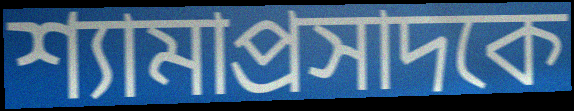
শ্যামাপ্রসাদকে